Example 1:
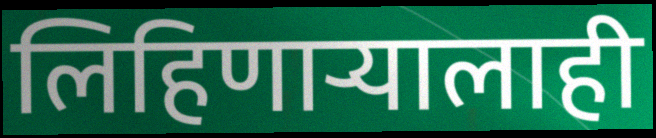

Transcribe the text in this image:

लिहिणाऱ्यालाही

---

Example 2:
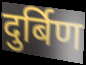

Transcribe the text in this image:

दुर्बिण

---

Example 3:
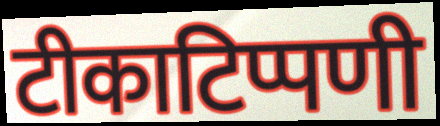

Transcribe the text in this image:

टीकाटिप्पणी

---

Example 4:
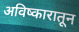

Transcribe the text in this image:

अविष्कारातून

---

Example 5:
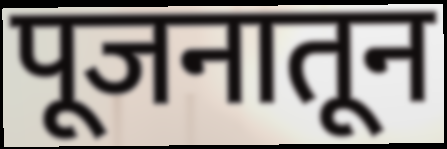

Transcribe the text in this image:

पूजनातून